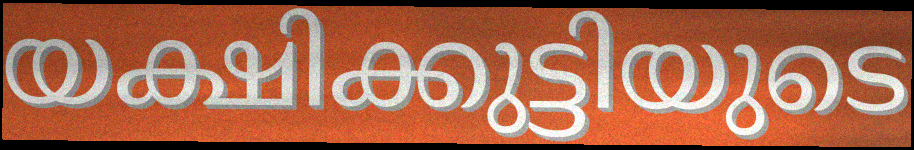
യക്ഷിക്കുട്ടിയുടെ